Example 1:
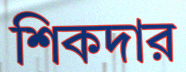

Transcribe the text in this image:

শিকদার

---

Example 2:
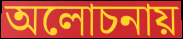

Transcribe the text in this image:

অলোচনায়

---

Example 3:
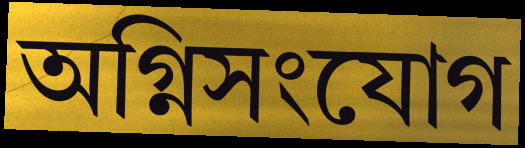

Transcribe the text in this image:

অগ্নিসংযোগ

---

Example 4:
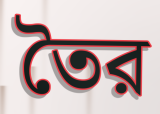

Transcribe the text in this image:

তৈর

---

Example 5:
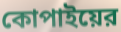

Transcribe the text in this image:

কোপাইয়ের